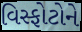
વિસ્ફોટોને